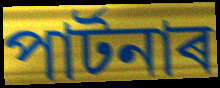
পাৰ্টনাৰ